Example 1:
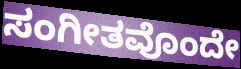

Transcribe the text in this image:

ಸಂಗೀತವೊಂದೇ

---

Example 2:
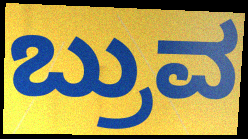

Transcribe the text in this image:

ಬ್ರುವ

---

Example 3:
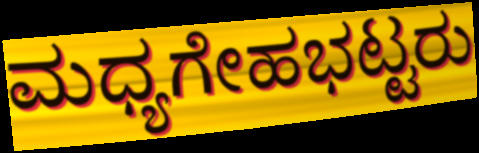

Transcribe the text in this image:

ಮಧ್ಯಗೇಹಭಟ್ಟರು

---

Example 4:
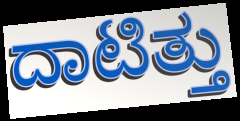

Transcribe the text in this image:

ದಾಟಿತ್ತು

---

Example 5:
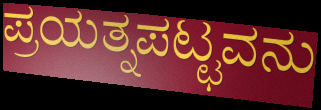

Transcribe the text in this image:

ಪ್ರಯತ್ನಪಟ್ಟವನು